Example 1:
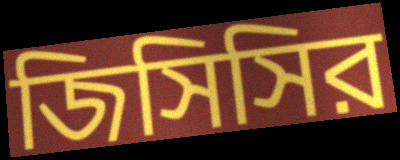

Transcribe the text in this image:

জিসিসির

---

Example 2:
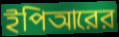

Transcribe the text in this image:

ইপিআরের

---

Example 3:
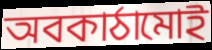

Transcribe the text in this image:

অবকাঠামোই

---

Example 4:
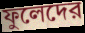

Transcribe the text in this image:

ফুলেদের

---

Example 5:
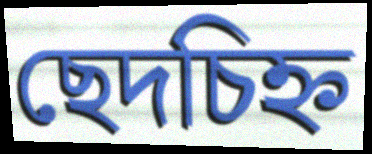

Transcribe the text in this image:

ছেদচিহ্ন